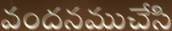
వందనముచేసి